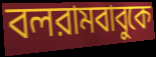
বলরামবাবুকে